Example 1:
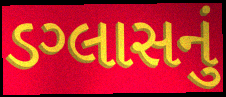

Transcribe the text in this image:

ડગ્લાસનું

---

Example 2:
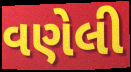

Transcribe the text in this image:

વણેલી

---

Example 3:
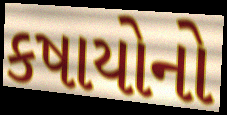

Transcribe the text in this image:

કષાયોનો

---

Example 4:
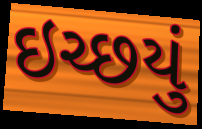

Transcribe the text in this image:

ઇચ્છયું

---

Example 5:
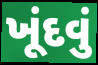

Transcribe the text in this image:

ખૂંદવું